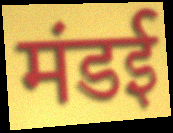
मंडई